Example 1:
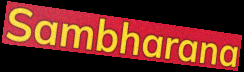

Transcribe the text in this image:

Sambharana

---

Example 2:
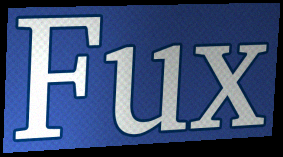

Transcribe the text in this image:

Fux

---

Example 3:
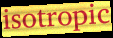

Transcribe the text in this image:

isotropic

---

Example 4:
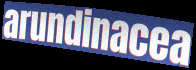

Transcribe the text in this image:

arundinacea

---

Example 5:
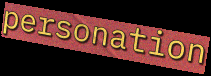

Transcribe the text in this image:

personation